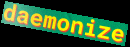
daemonize